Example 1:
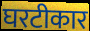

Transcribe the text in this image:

घरटीकार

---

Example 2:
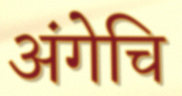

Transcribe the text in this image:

अंगेचि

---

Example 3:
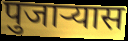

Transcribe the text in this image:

पुजाऱ्यास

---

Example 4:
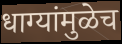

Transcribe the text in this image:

धाग्यांमुळेच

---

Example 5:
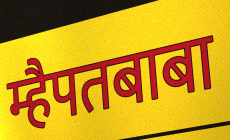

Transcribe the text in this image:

म्हैपतबाबा